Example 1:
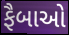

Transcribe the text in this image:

ફૈબાઓ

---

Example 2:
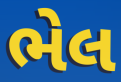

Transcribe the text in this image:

ભેલ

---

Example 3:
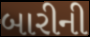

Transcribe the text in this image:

બારીની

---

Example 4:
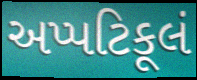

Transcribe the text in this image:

અપ્પટિકૂલં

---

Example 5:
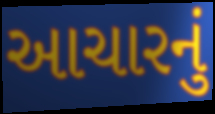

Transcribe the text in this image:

આચારનું